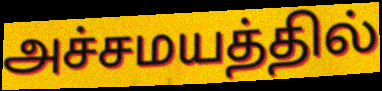
அச்சமயத்தில்